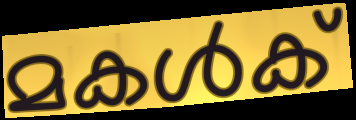
മകൾക്